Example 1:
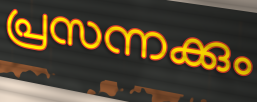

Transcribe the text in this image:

പ്രസന്നക്കും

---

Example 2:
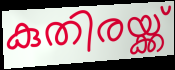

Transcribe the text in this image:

കുതിരയ്ക്ക്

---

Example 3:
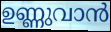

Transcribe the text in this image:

ഉണ്ണുവാൻ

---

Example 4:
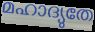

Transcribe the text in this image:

മഹാദ്യുതേ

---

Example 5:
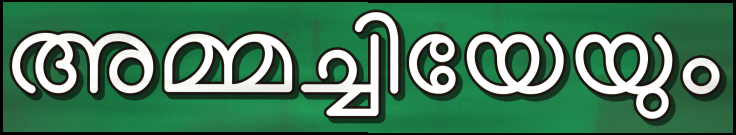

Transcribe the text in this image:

അമ്മച്ചിയേയും